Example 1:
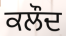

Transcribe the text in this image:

ਕਲੌਦ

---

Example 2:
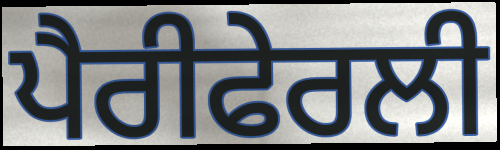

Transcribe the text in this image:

ਪੈਰੀਫੇਰਲੀ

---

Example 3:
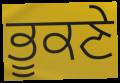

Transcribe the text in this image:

ਭੂਕਣੇ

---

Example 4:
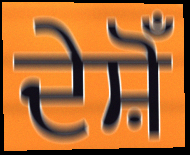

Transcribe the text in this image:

ਦੇਸ਼ੋਁ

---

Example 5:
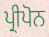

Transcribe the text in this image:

ਪ੍ਰੀਪੋਨ